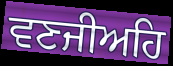
ਵਣਜੀਅਹਿ